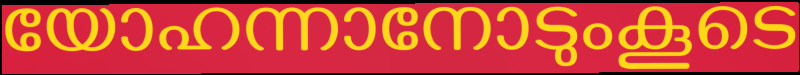
യോഹന്നാനോടുംകൂടെ